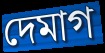
দেমাগ